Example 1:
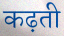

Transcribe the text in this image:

कढ़ती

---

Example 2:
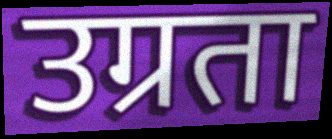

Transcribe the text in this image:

उग्रता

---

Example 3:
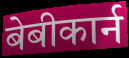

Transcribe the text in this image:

बेबीकार्न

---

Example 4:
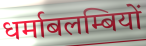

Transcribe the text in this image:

धर्माबलम्बियों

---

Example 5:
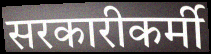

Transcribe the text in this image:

सरकारीकर्मी